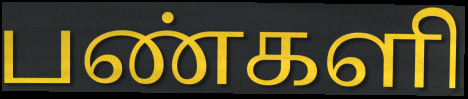
பண்களி